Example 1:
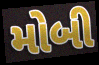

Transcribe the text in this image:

મોબી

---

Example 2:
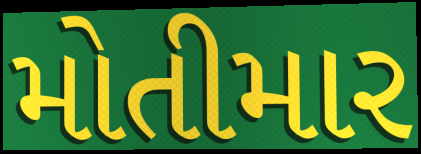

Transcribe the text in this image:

મોતીમાર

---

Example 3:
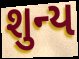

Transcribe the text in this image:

શુન્ય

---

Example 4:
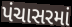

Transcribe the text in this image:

પંચાસરમાં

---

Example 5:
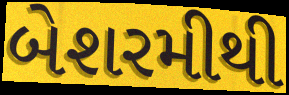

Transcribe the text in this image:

બેશરમીથી